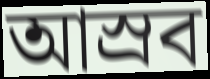
আস্রব